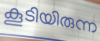
കൂടിയിരുന്ന